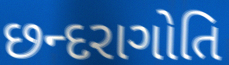
છન્દરાગોતિ